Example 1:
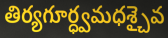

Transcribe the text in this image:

తిర్యగూర్ధ్వమధశ్చైవ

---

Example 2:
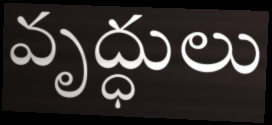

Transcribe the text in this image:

వృద్ధులు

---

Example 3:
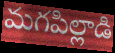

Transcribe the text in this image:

మగపిల్లాడి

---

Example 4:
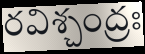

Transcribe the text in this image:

రవిశ్చంద్రః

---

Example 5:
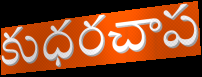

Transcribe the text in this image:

కుధరచాప